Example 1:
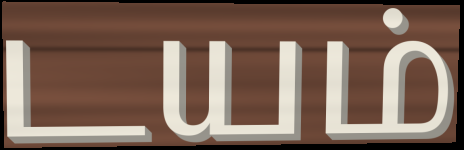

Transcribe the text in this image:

டயம்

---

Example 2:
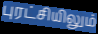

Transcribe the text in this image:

புரட்சியிலும்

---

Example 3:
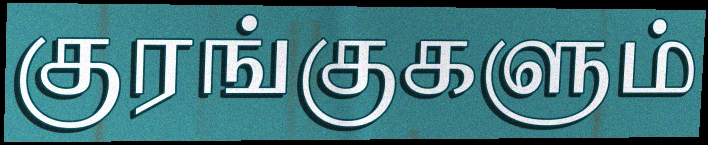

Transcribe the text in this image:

குரங்குகளும்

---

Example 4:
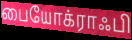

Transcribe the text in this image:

பையோக்ராஃபி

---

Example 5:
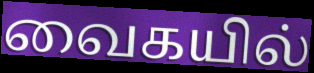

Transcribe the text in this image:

வைகயில்